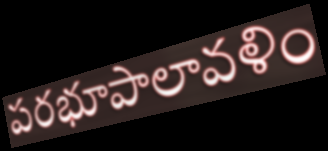
పరభూపాలావళిం